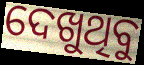
ଦେଖୁଥିବୁ